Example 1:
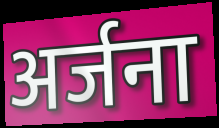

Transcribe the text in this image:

अर्जना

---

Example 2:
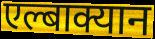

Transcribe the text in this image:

एल्बाक्यान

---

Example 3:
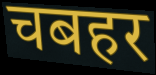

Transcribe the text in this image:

चबहर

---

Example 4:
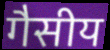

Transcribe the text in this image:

गैसीय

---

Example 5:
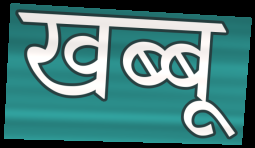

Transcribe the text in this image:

खब्बू